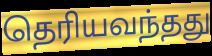
தெரியவந்தது